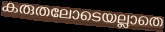
കരുതലോടെയല്ലാതെ